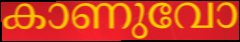
കാണുവോ